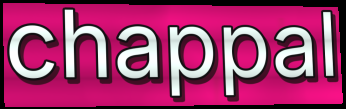
chappal